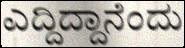
ಎದ್ದಿದ್ದಾನೆಂದು